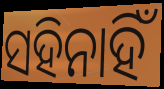
ସହିନାହିଁ